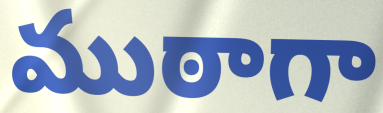
ముఠాగా